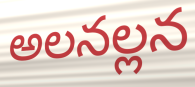
అలనల్లన